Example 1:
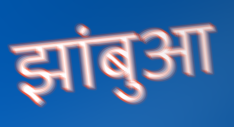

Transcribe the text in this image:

झांबुआ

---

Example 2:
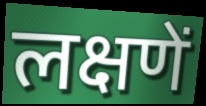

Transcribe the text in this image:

लक्षणें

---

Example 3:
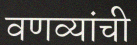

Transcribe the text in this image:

वणव्यांची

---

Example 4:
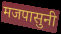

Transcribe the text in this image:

मजपासुनी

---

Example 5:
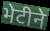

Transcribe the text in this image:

भेटीने